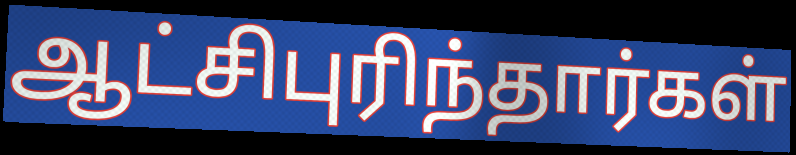
ஆட்சிபுரிந்தார்கள்